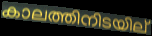
കാലത്തിനിടയില്